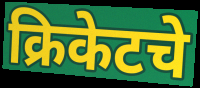
क्रिकेटचे